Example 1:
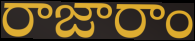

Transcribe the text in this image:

రాజారాం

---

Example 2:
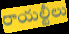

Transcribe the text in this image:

రాయల్టీలు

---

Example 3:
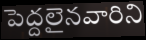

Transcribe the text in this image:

పెద్దలైనవారిని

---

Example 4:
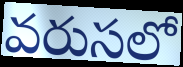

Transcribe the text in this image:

వరుసలో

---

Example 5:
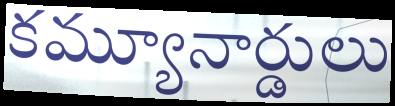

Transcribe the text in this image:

కమ్యూనార్డులు